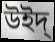
উইদ্